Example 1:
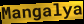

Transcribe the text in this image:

Mangalya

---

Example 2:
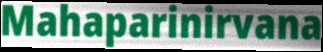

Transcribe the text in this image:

Mahaparinirvana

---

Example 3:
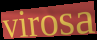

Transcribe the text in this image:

virosa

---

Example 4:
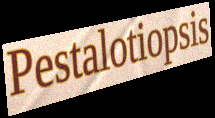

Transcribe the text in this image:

Pestalotiopsis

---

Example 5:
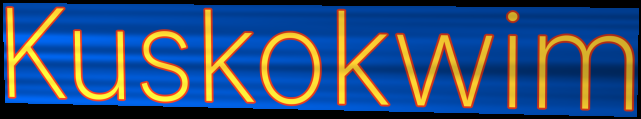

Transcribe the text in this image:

Kuskokwim